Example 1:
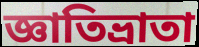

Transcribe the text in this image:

জ্ঞাতিভ্রাতা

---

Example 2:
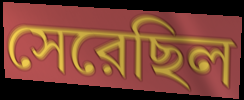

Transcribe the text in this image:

সেরেছিল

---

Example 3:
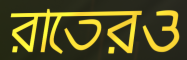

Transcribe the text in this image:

রাতেরও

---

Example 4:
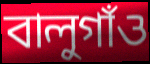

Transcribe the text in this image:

বালুগাঁও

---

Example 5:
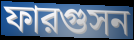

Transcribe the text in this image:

ফারগুসন